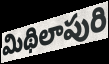
మిథిలాపురి